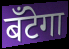
बँटेगा